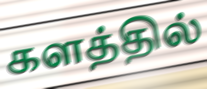
களத்தில்